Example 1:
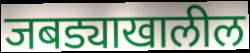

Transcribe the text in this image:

जबड्याखालील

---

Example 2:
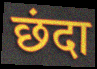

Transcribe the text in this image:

छंदा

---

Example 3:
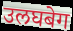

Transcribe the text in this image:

उलघबेग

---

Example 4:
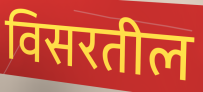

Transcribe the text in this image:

विसरतील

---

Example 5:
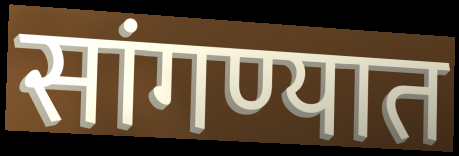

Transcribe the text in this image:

सांगण्यात